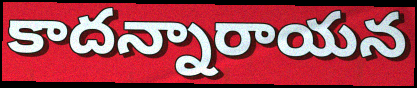
కాదన్నారాయన